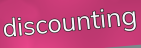
discounting